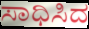
ಸಾಧಿಸಿದ